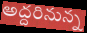
అద్దరినున్న